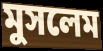
মুসলেম